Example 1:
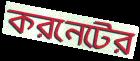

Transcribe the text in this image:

করনেটের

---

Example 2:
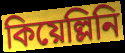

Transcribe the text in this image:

কিয়েল্লিনি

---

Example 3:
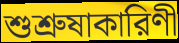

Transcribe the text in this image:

শুশ্রুষাকারিণী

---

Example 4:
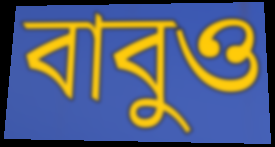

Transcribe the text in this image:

বাবুও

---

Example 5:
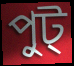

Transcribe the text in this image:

পুট্